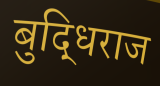
बुद्धिराज